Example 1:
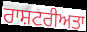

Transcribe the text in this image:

ਰਾਸ਼ਟਰੀਅਤਾ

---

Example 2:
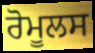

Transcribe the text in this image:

ਰੋਮੂਲਸ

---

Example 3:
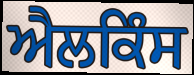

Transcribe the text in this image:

ਐਲਕਿੰਸ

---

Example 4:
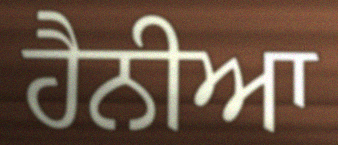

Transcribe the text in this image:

ਹੈਨੀਆ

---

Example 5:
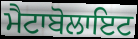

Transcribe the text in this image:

ਮੈਟਾਬੋਲਾਇਟ